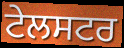
ਟੇਲਸਟਰ